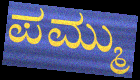
ಪಮ್ಮು